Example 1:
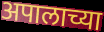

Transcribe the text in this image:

अपालाच्या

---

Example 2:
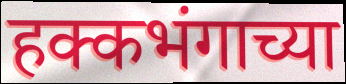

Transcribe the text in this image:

हक्कभंगाच्या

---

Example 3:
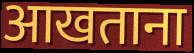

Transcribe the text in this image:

आखताना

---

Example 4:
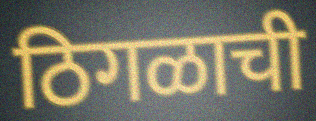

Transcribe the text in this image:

ठिगळाची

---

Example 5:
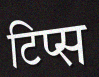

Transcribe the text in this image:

टिप्स